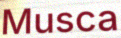
Musca